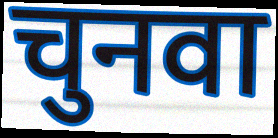
चुनवा